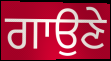
ਗਾਉਣੇ